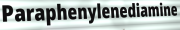
Paraphenylenediamine